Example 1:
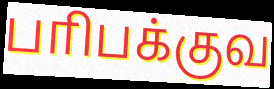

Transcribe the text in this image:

பரிபக்குவ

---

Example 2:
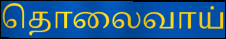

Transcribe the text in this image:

தொலைவாய்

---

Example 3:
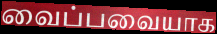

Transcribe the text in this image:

வைப்பவையாக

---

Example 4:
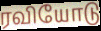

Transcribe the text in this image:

ரவியோடு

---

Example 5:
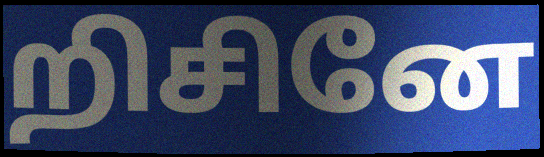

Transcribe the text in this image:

றிசினே